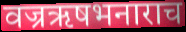
वज्रऋषभनाराच